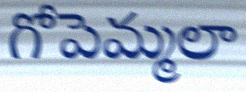
గోపెమ్మలా